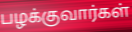
பழக்குவார்கள்